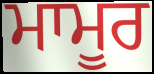
ਮਾਮੂਰ